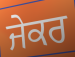
ਜੇਕਰ